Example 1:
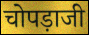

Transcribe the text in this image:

चोपड़ाजी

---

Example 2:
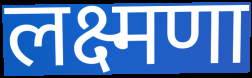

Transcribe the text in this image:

लक्ष्मणा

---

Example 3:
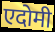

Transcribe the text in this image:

एदोमी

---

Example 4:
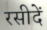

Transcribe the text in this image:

रसीदें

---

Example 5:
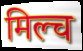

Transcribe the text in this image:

मिल्च